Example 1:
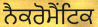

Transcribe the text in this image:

ਨੈਕਰੋਮੈਂਟਿਕ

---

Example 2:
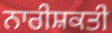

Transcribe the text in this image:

ਨਾਰੀਸ਼ਕਤੀ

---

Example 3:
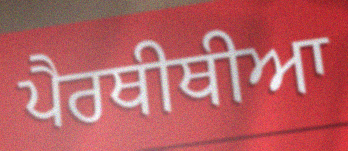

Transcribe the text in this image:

ਪੈਰਥੀਥੀਆ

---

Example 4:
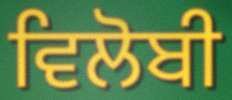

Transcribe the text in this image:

ਵਿਲੋਬੀ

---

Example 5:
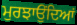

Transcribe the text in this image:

ਮੁਰਝਾਉਂਦਿਆਂ